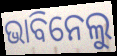
ଭାବିନେଲୁ